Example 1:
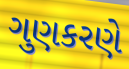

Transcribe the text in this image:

ગુણકરણે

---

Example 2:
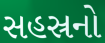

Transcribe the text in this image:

સહસ્રનો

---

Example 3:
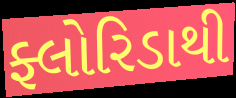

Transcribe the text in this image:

ફ્લોરિડાથી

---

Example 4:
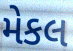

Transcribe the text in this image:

મેકલ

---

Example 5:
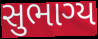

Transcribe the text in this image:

સુભાગ્ય